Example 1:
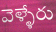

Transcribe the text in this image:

వెళ్ళేరు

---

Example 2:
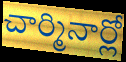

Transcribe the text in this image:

చార్మినార్లో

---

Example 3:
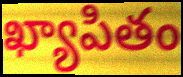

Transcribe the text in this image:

ఖ్యాపితం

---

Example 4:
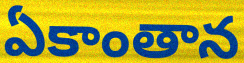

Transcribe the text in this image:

ఏకాంతాన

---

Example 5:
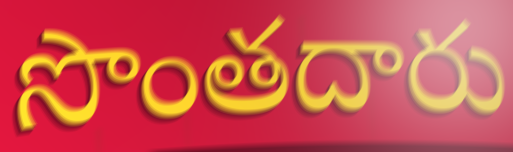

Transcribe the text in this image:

సొంతదారు